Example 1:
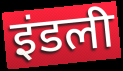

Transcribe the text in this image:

इंडली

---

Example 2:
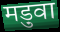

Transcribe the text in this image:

मड़ुवा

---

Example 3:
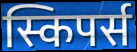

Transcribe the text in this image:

स्किपर्स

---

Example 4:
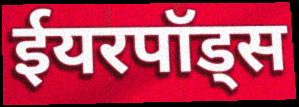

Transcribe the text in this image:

ईयरपॉड्स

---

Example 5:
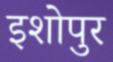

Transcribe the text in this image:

इशोपुर